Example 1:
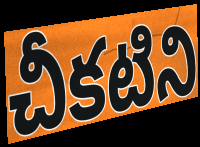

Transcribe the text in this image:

చీకటిని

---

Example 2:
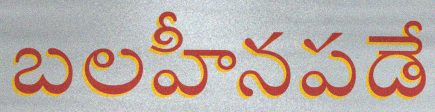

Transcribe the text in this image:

బలహీనపడే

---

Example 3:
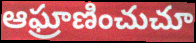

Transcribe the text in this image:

ఆఘ్రాణించుచూ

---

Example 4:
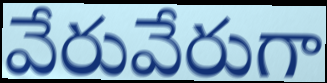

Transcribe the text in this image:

వేరువేరుగా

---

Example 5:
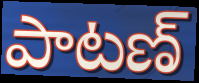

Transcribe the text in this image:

పాటణ్